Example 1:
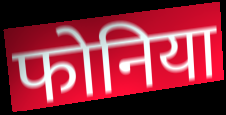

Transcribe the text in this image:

फोनिया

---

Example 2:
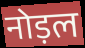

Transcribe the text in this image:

नोड़ल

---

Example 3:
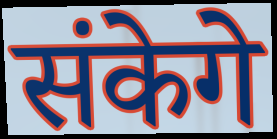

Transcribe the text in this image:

संकेगे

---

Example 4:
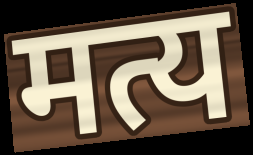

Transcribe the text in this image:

मत्य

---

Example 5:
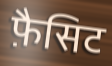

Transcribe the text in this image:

फ़ैसिट